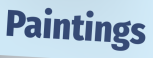
Paintings